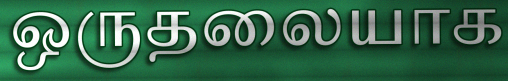
ஒருதலையாக